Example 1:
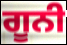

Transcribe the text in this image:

ਗੂਨੀ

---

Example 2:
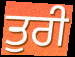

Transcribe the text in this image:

ਤੁਰੀ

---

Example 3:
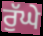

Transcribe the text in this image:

ਰੁੱਘੇ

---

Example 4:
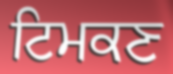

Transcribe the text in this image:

ਟਿਮਕਣ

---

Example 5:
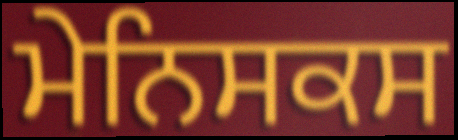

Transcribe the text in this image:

ਮੇਨਿਸਕਸ